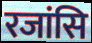
रजांसि